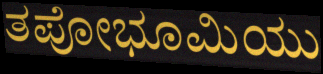
ತಪೋಭೂಮಿಯು